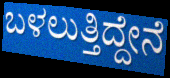
ಬಳಲುತ್ತಿದ್ದೇನೆ